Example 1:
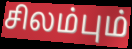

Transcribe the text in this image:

சிலம்பும்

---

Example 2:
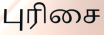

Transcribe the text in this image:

புரிசை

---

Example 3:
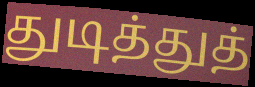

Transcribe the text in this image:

துடித்துத்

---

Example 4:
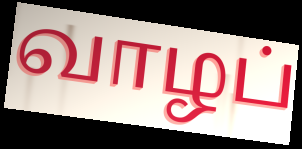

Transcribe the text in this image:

வாழப்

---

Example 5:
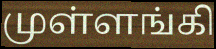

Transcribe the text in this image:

முள்ளங்கி